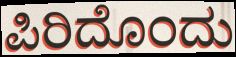
ಪಿರಿದೊಂದು